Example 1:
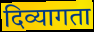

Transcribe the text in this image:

दिव्यागता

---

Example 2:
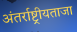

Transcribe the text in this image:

अंतर्राष्ट्रीयताजा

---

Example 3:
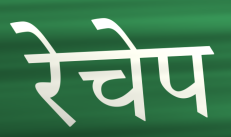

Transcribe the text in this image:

रेचेप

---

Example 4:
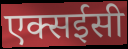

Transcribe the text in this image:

एक्सईसी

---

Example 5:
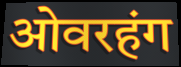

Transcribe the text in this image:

ओवरहंग